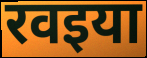
रवइया